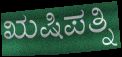
ಋಷಿಪತ್ನಿ